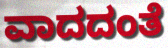
ವಾದದಂತೆ